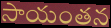
సాయంతన